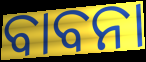
ବାବନା